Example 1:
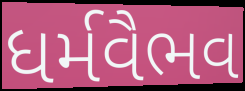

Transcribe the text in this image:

ધર્મવૈભવ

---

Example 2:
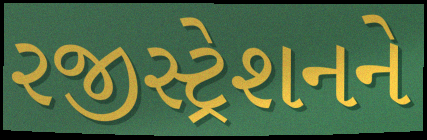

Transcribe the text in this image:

રજીસ્ટ્રેશનને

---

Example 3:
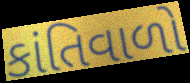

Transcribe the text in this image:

કાંતિવાળો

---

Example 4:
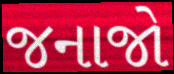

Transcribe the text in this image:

જનાજો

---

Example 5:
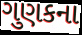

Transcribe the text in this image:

ગુણકના